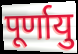
पूर्णायु